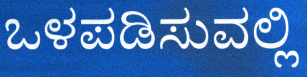
ಒಳಪಡಿಸುವಲ್ಲಿ